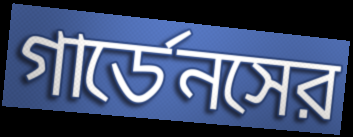
গার্ডেনসের